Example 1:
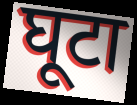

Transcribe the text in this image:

घूटा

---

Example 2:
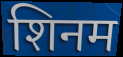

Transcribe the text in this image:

शिनम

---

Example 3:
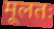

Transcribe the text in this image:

मूलतः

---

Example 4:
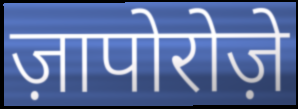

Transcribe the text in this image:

ज़ापोरोज़े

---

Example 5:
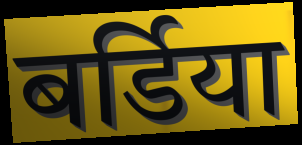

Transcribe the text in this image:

बर्डिया